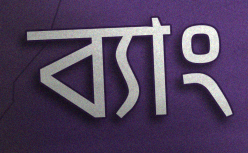
ব্যাং